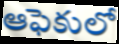
ఆఫెకులో